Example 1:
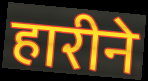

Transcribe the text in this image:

हारीने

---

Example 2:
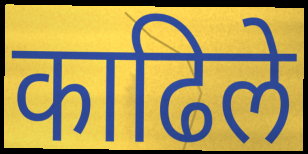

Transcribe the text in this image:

काढिले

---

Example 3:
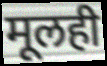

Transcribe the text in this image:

मूलही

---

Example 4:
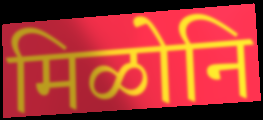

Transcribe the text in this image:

मिळोनि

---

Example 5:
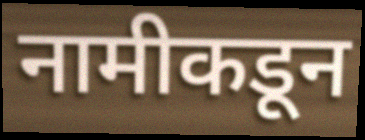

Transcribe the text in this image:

नामीकडून